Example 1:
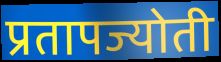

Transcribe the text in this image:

प्रतापज्योती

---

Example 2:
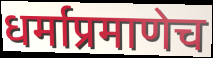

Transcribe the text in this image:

धर्माप्रमाणेच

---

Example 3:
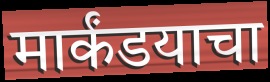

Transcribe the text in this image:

मार्कंडयाचा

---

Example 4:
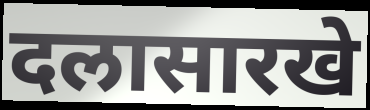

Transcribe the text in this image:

दलासारखे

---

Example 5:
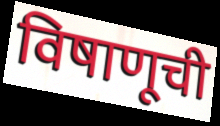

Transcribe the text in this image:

विषाणूची